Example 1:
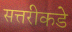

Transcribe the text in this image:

सत्तरीकडे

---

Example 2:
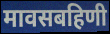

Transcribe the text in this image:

मावसबहिणी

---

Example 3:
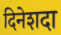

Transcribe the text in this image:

दिनेशदा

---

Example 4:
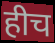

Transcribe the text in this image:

हीच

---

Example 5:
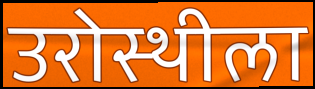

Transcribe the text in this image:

उरोस्थीला